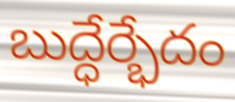
బుద్ధేర్భేదం